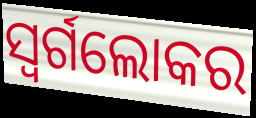
ସ୍ୱର୍ଗଲୋକର